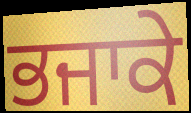
ਭਜਾਕੇ